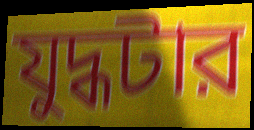
যুদ্ধটার